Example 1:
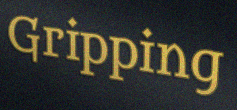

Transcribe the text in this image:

Gripping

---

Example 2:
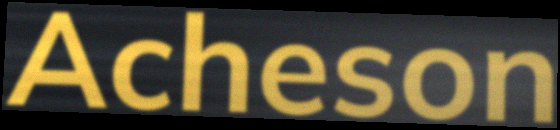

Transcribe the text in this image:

Acheson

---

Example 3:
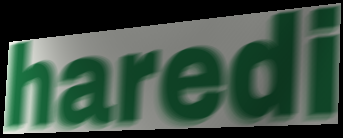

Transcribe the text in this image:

haredi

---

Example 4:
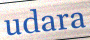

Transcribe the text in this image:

udara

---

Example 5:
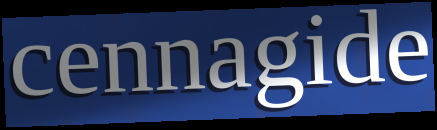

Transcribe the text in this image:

cennagide